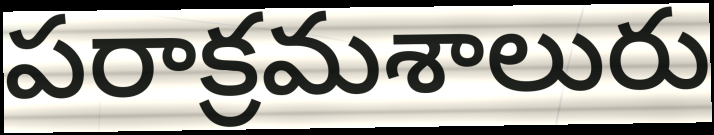
పరాక్రమశాలురు